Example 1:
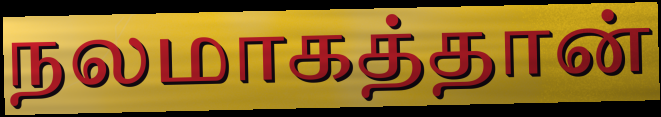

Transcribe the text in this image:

நலமாகத்தான்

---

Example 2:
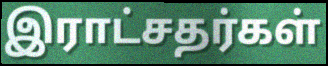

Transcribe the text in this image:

இராட்சதர்கள்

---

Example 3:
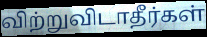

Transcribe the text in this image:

விற்றுவிடாதீர்கள்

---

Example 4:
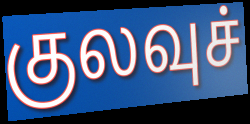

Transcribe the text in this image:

குலவுச்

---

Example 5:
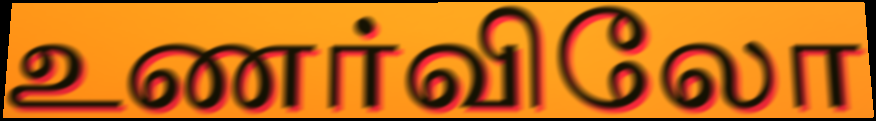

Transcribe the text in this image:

உணர்விலோ